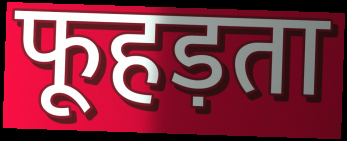
फूहड़ता